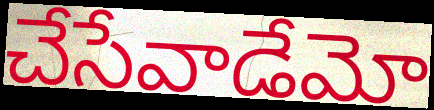
చేసేవాడేమో